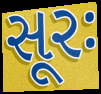
સૂરઃ